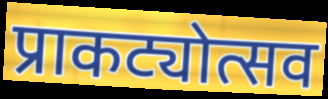
प्राकट्योत्सव